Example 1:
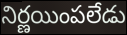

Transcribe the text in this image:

నిర్ణయింపలేడు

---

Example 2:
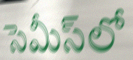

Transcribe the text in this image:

సెమీస్‌లో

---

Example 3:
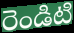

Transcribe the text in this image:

రెండిటి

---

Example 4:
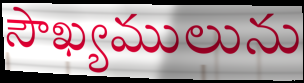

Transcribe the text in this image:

సౌఖ్యములును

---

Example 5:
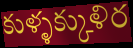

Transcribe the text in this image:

కుళ్ళక్కుళిర